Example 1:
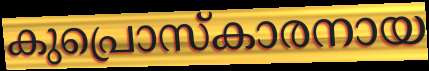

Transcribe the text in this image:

കുപ്രൊസ്കാരനായ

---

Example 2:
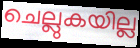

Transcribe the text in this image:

ചെല്ലുകയില്ല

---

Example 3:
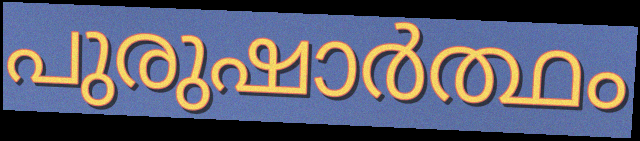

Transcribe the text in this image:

പുരുഷാർത്ഥം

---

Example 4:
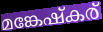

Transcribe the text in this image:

മങ്കേഷ്കര്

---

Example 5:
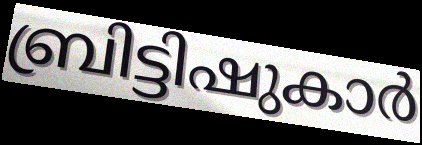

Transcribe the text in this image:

ബ്രിട്ടിഷുകാർ